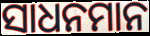
ସାଧନମାନ